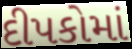
દીપકોમાં